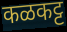
कळकट्ट